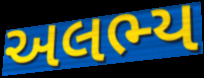
અલભ્ય